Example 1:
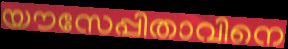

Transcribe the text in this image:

യൗസേപ്പിതാവിനെ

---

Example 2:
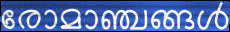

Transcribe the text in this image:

രോമാഞ്ചങ്ങൾ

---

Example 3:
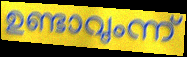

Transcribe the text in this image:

ഉണ്ടാവുംന്ന്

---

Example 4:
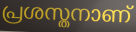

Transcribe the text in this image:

പ്രശസ്തനാണ്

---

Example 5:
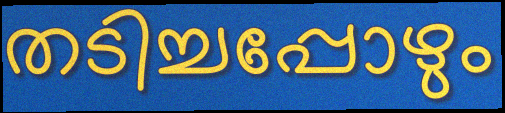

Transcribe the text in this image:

തടിച്ചപ്പോഴും